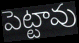
పెట్టావు